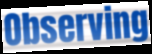
Observing